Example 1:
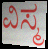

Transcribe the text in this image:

ವಿಸ್ಮ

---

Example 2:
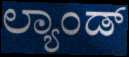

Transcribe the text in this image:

ಲ್ಯಾಂಡ್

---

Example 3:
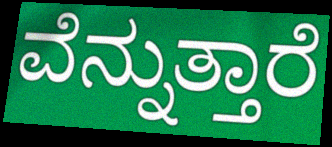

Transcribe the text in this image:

ವೆನ್ನುತ್ತಾರೆ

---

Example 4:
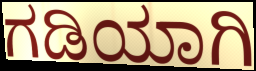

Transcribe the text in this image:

ಗಡಿಯಾಗಿ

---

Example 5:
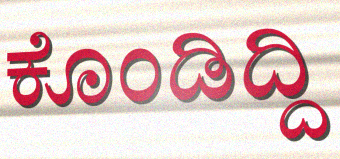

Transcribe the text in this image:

ಕೊಂಡಿದ್ದಿ